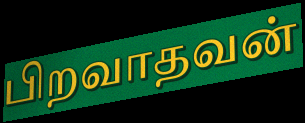
பிறவாதவன்